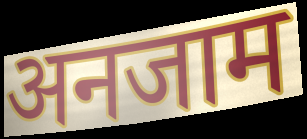
अनजाम